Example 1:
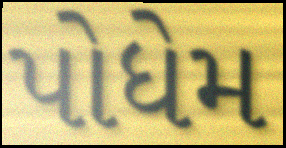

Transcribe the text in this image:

પોધેમ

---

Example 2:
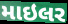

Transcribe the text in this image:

માઇલર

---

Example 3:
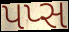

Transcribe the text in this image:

પપ્સ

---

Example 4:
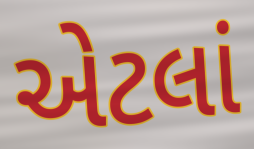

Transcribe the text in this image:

એટલાં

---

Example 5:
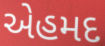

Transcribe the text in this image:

એહમદ